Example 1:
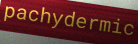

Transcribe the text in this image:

pachydermic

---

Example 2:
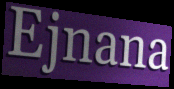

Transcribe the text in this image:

Ejnana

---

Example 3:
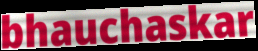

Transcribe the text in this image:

bhauchaskar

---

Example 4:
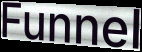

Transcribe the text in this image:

Funnel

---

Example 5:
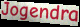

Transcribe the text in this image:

Jogendra